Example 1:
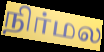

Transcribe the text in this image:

நிர்மல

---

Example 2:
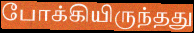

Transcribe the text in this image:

போக்கியிருந்தது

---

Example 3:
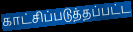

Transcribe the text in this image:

காட்சிப்படுத்தப்பட்ட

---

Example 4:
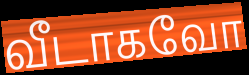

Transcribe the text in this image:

வீடாகவோ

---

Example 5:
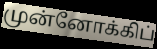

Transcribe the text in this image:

முன்னோக்கிப்